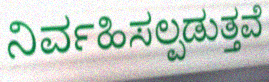
ನಿರ್ವಹಿಸಲ್ಪಡುತ್ತವೆ